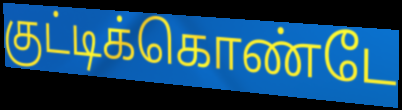
குட்டிக்கொண்டே